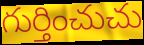
గుర్తించుచు